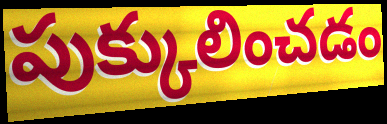
పుక్కులించడం